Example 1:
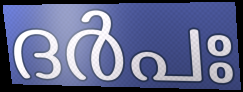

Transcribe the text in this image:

ദർപഃ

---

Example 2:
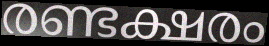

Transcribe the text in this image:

രണ്ടക്ഷരം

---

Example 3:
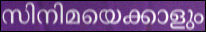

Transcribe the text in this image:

സിനിമയെക്കാളും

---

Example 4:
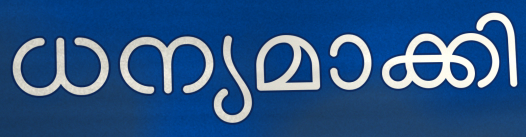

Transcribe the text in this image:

ധന്യമാക്കി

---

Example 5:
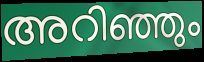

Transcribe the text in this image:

അറിഞ്ഞും